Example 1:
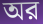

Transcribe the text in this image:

অর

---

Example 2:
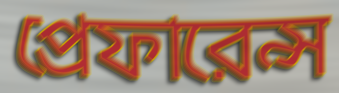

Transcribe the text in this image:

প্রেফারেন্স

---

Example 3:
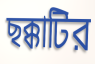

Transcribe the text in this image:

ছক্কাটির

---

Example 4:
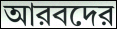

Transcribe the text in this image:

আরবদের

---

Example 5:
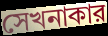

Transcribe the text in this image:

সেখনাকার